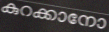
കുറക്കാനോ